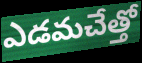
ఎడమచేత్తో